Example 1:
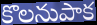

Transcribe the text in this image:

కొలనుపాక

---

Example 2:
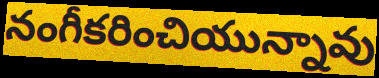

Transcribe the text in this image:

నంగీకరించియున్నావు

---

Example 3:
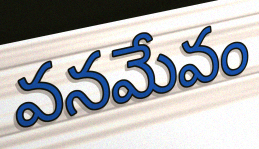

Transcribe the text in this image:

వనమేవం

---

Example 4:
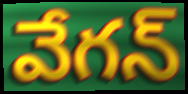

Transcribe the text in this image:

వేగన్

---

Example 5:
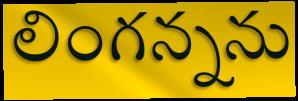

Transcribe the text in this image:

లింగన్నను